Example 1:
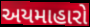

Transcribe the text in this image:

અયમાહારો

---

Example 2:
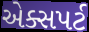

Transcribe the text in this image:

એક્સપર્ટ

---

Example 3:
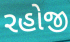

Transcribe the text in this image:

રહોજી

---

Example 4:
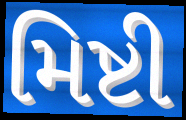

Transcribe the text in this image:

મિષ્ટી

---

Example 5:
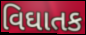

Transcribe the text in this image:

વિઘાતક